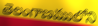
తెలంగాణములోని